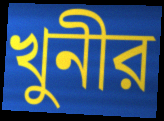
খুনীর